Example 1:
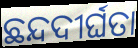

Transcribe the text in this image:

ଛନ୍ଦଦୀର୍ଘତା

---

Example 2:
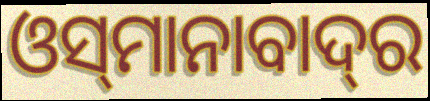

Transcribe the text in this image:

ଓସ୍‌ମାନାବାଦ୍‌ର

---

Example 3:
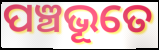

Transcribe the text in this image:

ପଞ୍ଚଭୂତେ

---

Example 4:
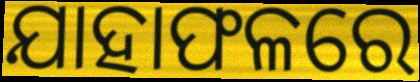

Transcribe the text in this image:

ଯାହାଫଳରେ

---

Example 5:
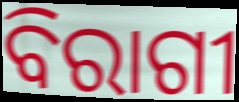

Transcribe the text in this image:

ବିରାଗୀ